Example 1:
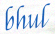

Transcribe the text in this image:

bhul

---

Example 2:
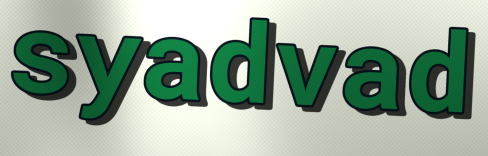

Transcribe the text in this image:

syadvad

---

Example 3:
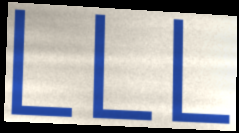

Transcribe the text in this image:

LLL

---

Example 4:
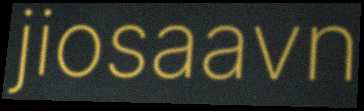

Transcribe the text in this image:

jiosaavn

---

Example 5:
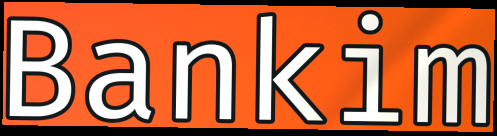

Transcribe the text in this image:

Bankim